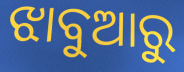
ଝାବୁଆରୁ